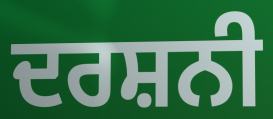
ਦਰਸ਼ਨੀ